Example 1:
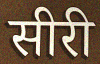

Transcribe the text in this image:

सीरी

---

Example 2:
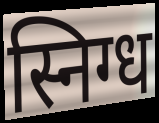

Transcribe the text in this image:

स्निग्ध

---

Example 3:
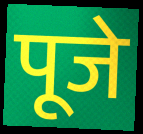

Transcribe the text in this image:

पूजे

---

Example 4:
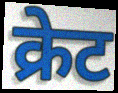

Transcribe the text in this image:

क्रेट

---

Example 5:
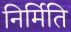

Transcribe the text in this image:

निर्मिति